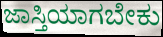
ಜಾಸ್ತಿಯಾಗಬೇಕು